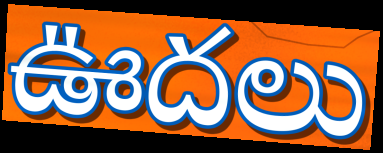
ఊదలు